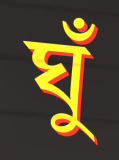
ঘুঁ